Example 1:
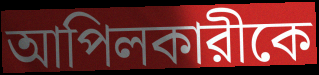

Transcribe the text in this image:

আপিলকারীকে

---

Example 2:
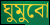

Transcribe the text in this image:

ঘুমুবো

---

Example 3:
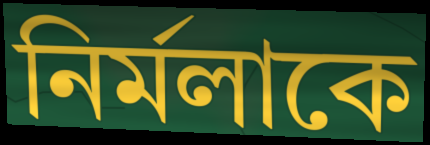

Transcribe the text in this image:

নির্মলাকে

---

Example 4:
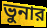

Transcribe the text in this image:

ভুনার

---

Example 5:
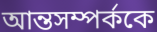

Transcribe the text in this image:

আন্তসম্পর্ককে